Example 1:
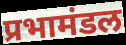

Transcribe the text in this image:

प्रभामंडल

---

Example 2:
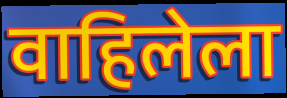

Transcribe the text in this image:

वाहिलेला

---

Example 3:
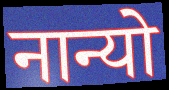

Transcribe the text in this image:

नान्यो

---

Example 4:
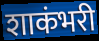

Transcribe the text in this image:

शाकंभरी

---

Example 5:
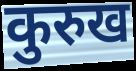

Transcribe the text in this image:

कुरुख